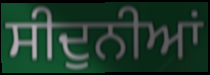
ਸੀਦੁਨੀਆਂ